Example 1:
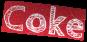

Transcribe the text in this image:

Coke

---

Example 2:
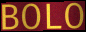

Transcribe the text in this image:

BOLO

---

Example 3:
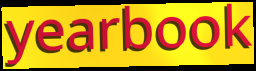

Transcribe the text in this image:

yearbook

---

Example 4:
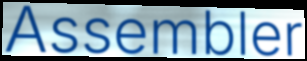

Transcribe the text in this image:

Assembler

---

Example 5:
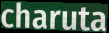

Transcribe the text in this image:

charuta